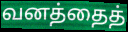
வனத்தைத்